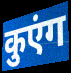
कुएंग